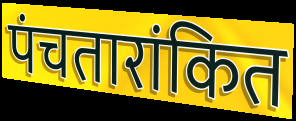
पंचतारांकित